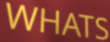
WHATS